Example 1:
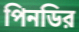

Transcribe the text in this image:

পিনডির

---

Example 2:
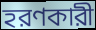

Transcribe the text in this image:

হরণকারী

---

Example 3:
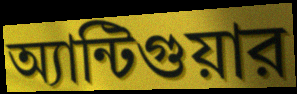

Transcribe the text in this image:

অ্যান্টিগুয়ার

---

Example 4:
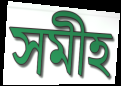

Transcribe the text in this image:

সমীহ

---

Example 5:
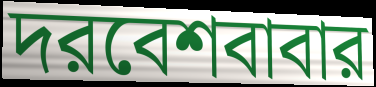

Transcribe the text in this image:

দরবেশবাবার